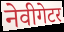
नेवीगेटर